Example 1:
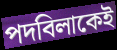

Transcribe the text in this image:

পদবিলাকেই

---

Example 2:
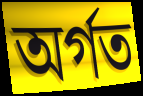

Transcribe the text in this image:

অৰ্গত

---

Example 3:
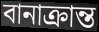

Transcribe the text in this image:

বানাক্ৰান্ত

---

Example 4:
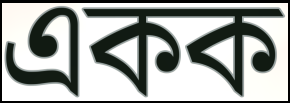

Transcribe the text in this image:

একক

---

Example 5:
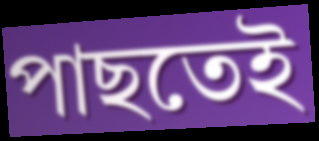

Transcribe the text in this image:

পাছতেই